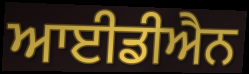
ਆਈਡੀਐਨ